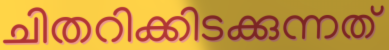
ചിതറിക്കിടക്കുന്നത്